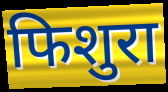
फिशुरा